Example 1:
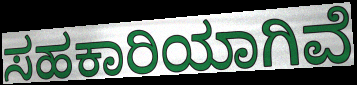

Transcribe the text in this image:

ಸಹಕಾರಿಯಾಗಿವೆ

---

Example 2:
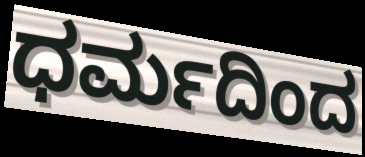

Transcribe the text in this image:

ಧರ್ಮದಿಂದ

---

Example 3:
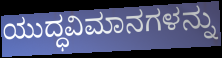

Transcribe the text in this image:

ಯುದ್ಧವಿಮಾನಗಳನ್ನು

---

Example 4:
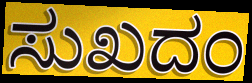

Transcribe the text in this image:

ಸುಖದಂ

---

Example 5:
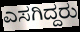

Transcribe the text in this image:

ಎಸಗಿದ್ದರು